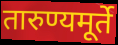
तारुण्यमूर्ते